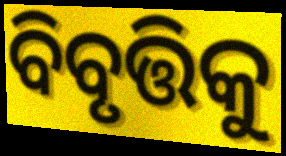
ବିବୃତ୍ତିକୁ